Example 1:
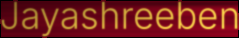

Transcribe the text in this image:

Jayashreeben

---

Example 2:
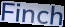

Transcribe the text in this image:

Finch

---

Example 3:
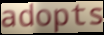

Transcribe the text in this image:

adopts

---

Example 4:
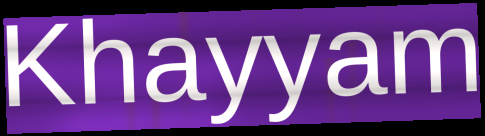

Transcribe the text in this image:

Khayyam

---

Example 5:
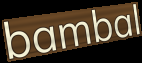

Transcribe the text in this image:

bambal